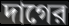
দাগের